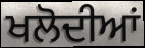
ਖਲੋਦੀਆਂ